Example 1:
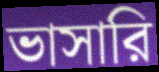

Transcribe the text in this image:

ভাসারি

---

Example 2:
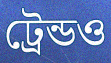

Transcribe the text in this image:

ট্রেন্ডও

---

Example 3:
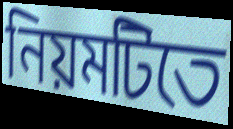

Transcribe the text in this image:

নিয়মটিতে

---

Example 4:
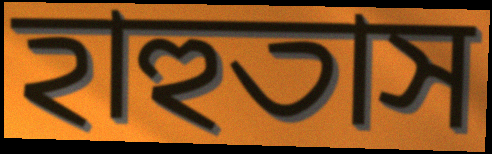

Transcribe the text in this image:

হাহুতাস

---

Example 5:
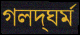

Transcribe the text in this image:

গলদ্‌ঘর্ম